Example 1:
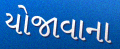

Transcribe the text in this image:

યોજાવાના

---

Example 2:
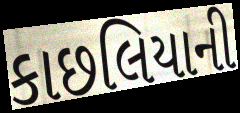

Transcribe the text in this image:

કાછલિયાની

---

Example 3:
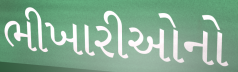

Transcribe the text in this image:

ભીખારીઓનો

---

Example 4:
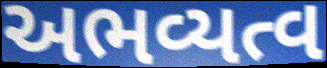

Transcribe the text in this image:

અભવ્યત્વ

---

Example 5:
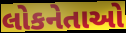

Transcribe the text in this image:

લોકનેતાઓ